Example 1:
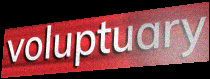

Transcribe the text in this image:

voluptuary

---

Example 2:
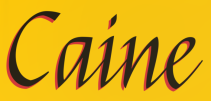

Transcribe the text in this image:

Caine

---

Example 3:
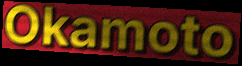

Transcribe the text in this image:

Okamoto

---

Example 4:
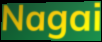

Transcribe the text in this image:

Nagai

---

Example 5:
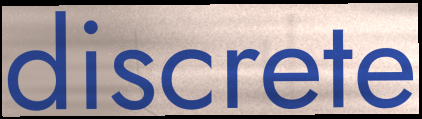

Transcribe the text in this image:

discrete